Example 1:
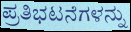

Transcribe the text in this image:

ಪ್ರತಿಭಟನೆಗಳನ್ನು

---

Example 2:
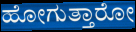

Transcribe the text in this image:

ಹೋಗುತ್ತಾರೋ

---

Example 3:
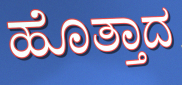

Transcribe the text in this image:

ಹೊತ್ತಾದ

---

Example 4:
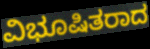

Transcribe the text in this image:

ವಿಭೂಷಿತರಾದ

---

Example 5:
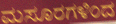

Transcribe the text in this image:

ಮಸೂರಗಳಿಂದ